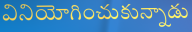
వినియోగించుకున్నాడు